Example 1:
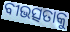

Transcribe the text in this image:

ବୀଭତ୍ସତାକୁ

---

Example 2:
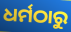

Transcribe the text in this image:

ଧର୍ମଠାରୁ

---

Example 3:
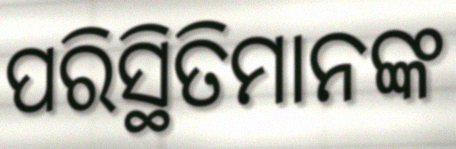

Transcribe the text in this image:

ପରିସ୍ଥିତିମାନଙ୍କ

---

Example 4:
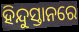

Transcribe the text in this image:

ହିନ୍ଦୁସ୍ତାନରେ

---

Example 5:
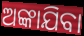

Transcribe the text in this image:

ଅଙ୍କାଯିବା